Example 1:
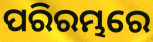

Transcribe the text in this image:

ପରିରମ୍ଭରେ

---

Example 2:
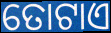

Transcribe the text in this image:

ତୋଟାଏ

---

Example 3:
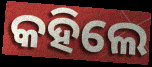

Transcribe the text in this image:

କହିଲେ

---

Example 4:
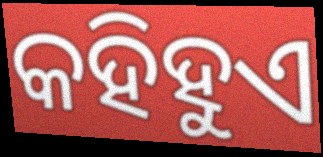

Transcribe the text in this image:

କହିହୁଏ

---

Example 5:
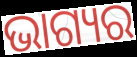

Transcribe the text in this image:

ଭାଗ୍ୟର